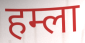
हम्ला